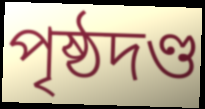
পৃষ্ঠদণ্ড